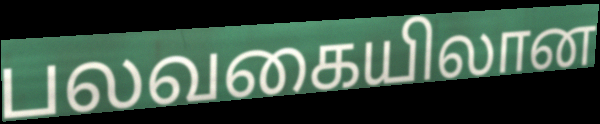
பலவகையிலான